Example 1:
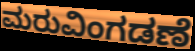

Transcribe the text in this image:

ಮರುವಿಂಗಡಣೆ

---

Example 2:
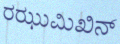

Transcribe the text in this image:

ರಝುಮಿಖಿನ್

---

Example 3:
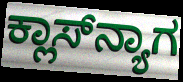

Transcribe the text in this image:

ಕ್ಲಾಸ್‌ನ್ಯಾಗ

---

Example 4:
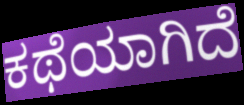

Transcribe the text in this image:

ಕಥೆಯಾಗಿದೆ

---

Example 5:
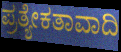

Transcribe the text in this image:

ಪ್ರತ್ಯೇಕತಾವಾದಿ